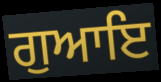
ਗੁਆਇ